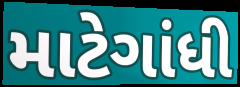
માટેગાંધી